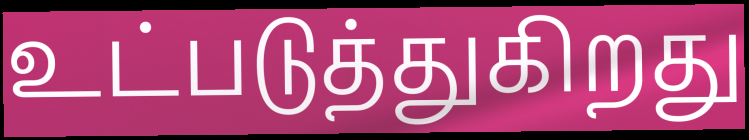
உட்படுத்துகிறது